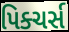
પિક્ચર્સ